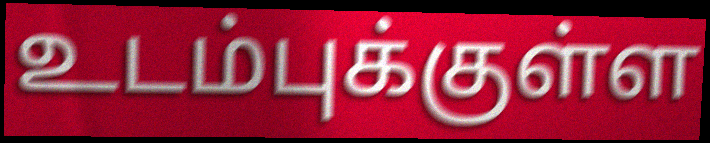
உடம்புக்குள்ள